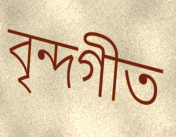
বৃন্দগীত